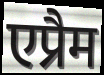
एप्रैम